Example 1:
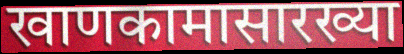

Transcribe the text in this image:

खाणकामासारख्या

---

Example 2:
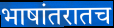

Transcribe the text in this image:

भाषांतरातच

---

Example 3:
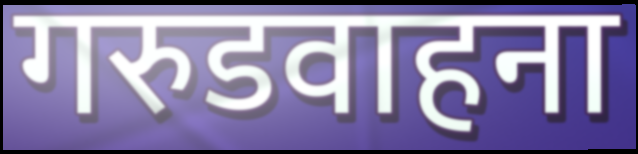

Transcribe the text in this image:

गरुडवाहना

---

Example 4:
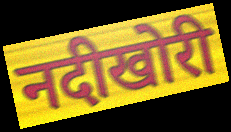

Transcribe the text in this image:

नदीखोरी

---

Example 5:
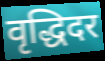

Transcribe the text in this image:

वृद्धिदर